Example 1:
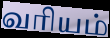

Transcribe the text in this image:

வரியம்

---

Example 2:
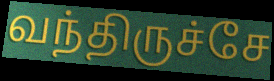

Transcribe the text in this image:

வந்திருச்சே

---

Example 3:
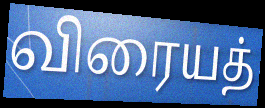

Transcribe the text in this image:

விரையத்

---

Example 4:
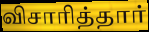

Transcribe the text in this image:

விசாரித்தார்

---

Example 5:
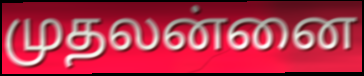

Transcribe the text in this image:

முதலன்னை